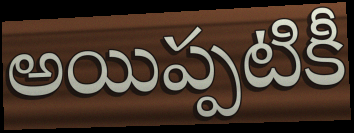
అయిప్పటికీ